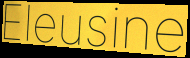
Eleusine